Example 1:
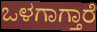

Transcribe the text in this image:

ಒಳಗಾಗ್ತಾರೆ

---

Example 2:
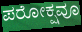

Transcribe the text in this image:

ಪರೋಕ್ಷವೂ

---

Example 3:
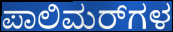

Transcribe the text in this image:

ಪಾಲಿಮರ್‌ಗಳ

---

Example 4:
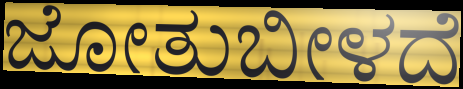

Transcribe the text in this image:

ಜೋತುಬೀಳದೆ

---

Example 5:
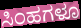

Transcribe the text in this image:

ಸಿಂಹಗಳೂ